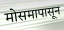
मोसमापासून